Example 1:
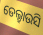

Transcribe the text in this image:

ଡେଲ୍ହାଉସି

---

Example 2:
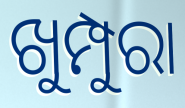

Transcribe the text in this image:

ଖୁମ୍ପୁରା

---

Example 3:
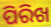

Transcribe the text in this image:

ପିରିଖ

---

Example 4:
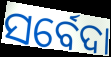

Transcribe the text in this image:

ସର୍ବେଦା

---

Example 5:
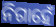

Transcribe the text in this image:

ନିଗାହେଁ